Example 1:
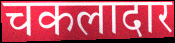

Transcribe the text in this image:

चकलादार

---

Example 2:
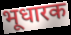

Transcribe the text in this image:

भूधारक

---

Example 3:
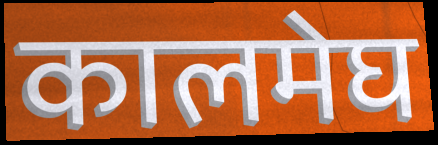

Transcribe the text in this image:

कालमेघ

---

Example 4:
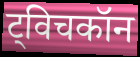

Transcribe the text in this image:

ट्विचकॉन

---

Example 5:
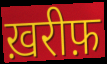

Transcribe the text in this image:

ख़रीफ़